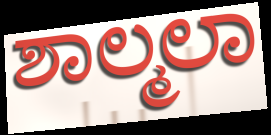
ಶಾಲ್ಮಲಾ